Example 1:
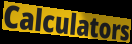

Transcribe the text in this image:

Calculators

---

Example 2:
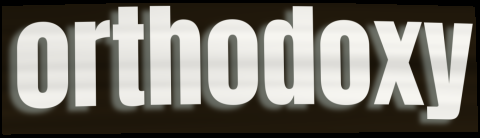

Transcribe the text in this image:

orthodoxy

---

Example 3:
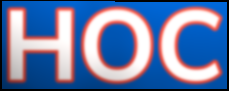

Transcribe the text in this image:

HOC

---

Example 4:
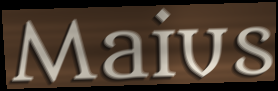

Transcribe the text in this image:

Maius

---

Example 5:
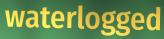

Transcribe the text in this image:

waterlogged